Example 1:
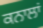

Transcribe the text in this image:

ਕਨਾਲਾਂ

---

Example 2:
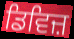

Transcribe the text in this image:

ਡਿਵਿਜ਼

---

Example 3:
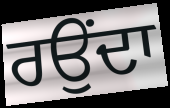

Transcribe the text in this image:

ਰਉਂਦਾ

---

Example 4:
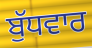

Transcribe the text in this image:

ਬੁੱਧਵਾਰ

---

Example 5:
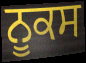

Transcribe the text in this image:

ਨੂਕਸ